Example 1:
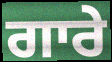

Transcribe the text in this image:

ਗਾਰੇ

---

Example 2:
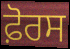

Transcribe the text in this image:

ਫ਼ੋਰਸ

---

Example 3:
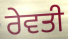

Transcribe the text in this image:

ਰੇਵਤੀ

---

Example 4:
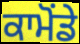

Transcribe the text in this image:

ਕਾਮੋਂਡੇ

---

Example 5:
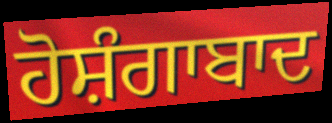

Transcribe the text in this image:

ਹੋਸ਼ੰਗਾਬਾਦ